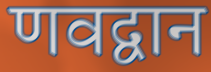
णवद्वान